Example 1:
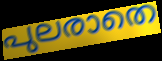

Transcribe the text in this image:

പുലരാതെ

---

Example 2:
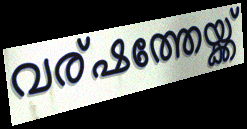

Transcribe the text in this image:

വര്ഷത്തേയ്ക്ക്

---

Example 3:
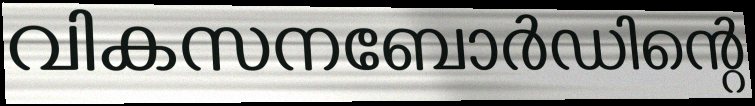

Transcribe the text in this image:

വികസനബോർഡിന്റെ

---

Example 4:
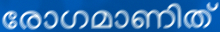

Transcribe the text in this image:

രോഗമാണിത്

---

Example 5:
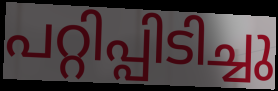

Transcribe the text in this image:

പറ്റിപ്പിടിച്ചു